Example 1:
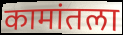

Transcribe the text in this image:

कामांतला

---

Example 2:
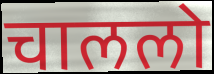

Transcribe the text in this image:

चाललो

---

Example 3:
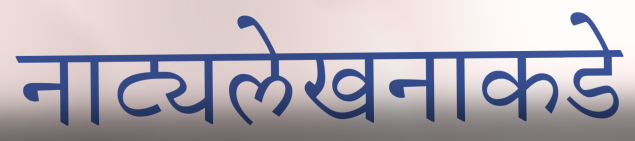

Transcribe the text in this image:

नाट्यलेखनाकडे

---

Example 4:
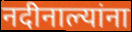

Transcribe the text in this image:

नदीनाल्यांना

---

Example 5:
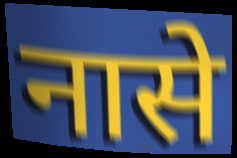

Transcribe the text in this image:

नासे